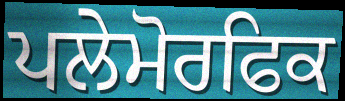
ਪਲੇਮੋਰਫਿਕ